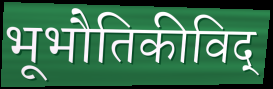
भूभौतिकीविद्